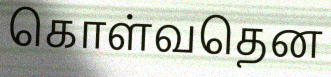
கொள்வதென